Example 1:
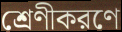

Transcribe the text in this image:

শ্রেণীকরণে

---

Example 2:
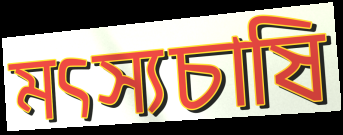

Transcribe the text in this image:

মৎস্যচাষি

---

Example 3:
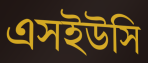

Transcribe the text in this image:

এসইউসি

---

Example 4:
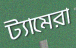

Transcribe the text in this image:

ট্যামেরা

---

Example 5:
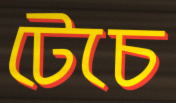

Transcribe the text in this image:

টেচে